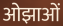
ओझाओं